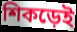
শিকড়েই